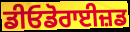
ਡੀਓਡੋਰਾਈਜ਼ਡ